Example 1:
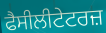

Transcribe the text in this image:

ਫੈਸੀਲੀਟੇਟਰਜ਼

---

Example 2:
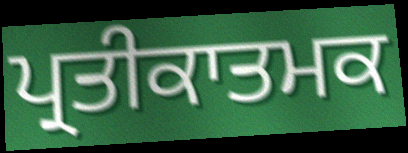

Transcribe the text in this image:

ਪ੍ਰਤੀਕਾਤਮਕ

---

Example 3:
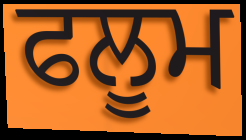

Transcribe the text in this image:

ਫਲੂਮ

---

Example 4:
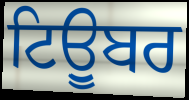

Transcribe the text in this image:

ਟਿਊੁਬਰ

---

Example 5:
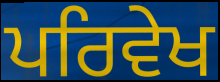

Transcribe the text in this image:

ਪਰਿਵੇਖ